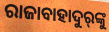
ରାଜାବାହାଦୁର୍‍ଙ୍କୁ